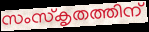
സംസ്കൃതത്തിന്